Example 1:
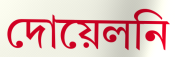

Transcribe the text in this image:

দোয়েলনি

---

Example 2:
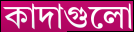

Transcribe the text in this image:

কাদাগুলো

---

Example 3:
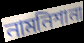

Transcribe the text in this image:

নামনিশানা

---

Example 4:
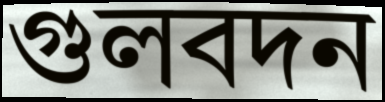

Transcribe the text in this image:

গুলবদন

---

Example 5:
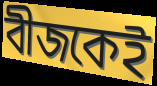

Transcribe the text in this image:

বীজকেই